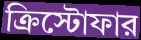
ক্রিস্টোফার